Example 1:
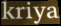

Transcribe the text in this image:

kriya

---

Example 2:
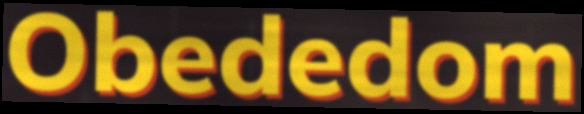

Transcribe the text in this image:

Obededom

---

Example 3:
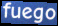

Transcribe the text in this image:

fuego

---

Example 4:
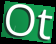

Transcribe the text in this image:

Ot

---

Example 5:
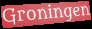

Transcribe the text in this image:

Groningen